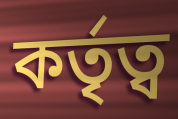
কর্তৃত্ব